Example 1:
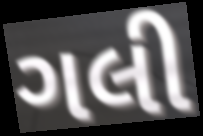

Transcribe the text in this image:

ગલી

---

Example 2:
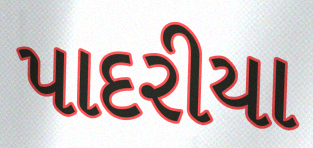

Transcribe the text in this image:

પાદરીયા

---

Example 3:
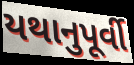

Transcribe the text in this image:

યથાનુપૂર્વી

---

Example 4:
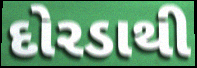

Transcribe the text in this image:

દોરડાથી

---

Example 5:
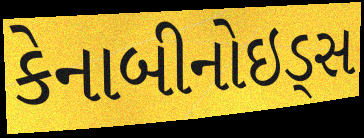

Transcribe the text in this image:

કેનાબીનોઇડ્સ